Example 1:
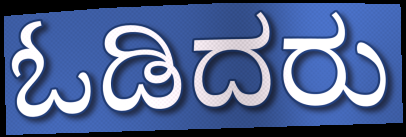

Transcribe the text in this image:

ಓಡಿದರು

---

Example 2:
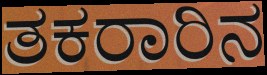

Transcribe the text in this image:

ತಕರಾರಿನ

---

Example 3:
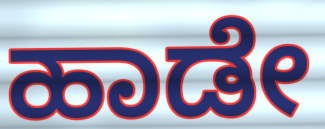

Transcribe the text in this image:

ಹಾಡೇ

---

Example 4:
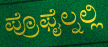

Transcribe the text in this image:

ಪ್ರೊಫೈಲ್ನಲ್ಲಿ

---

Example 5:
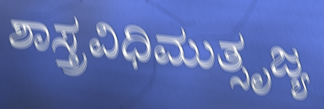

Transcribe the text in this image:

ಶಾಸ್ತ್ರವಿಧಿಮುತ್ಸೃಜ್ಯ